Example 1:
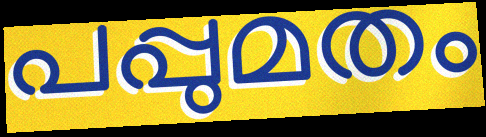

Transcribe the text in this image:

പപ്പുമതം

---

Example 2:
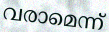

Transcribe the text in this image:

വരാമെന്ന്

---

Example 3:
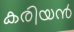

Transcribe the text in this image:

കരിയൻ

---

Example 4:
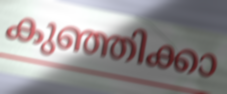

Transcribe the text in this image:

കുഞ്ഞിക്കാ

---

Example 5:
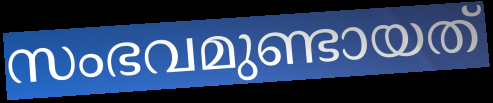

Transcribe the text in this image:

സംഭവമുണ്ടായത്